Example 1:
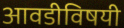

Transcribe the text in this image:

आवडीविषयी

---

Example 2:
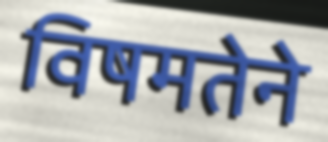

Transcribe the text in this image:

विषमतेने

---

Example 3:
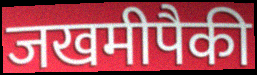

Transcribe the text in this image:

जखमीपैकी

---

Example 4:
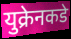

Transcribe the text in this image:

युक्रेनकडे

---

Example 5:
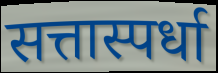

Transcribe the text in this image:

सत्तास्पर्धा